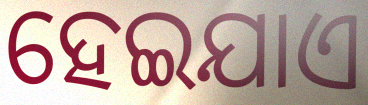
ହେଇଯାଏ